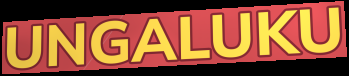
UNGALUKU